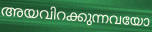
അയവിറക്കുന്നവയോ